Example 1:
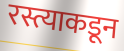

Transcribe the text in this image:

रस्त्याकडून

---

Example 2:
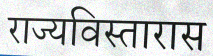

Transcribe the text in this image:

राज्यविस्तारास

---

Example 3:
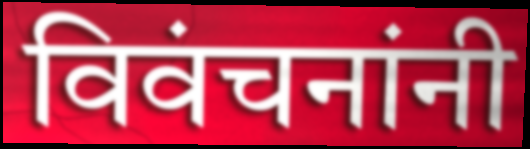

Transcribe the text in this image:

विवंचनांनी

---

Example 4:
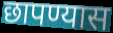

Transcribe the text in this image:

छापण्यास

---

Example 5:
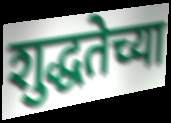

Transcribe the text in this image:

शुद्धतेच्या